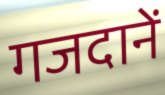
गजदानें